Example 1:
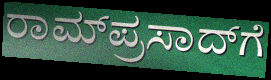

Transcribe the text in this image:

ರಾಮ್‌ಪ್ರಸಾದ್‌ಗೆ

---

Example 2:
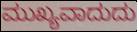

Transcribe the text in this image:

ಮುಖ್ಯವಾದುದು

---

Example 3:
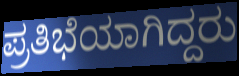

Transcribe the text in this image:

ಪ್ರತಿಭೆಯಾಗಿದ್ದರು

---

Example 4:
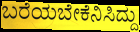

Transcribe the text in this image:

ಬರೆಯಬೇಕೆನಿಸಿದ್ದು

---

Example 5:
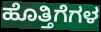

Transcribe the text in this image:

ಹೊತ್ತಿಗೆಗಳ